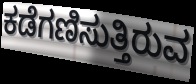
ಕಡೆಗಣಿಸುತ್ತಿರುವ